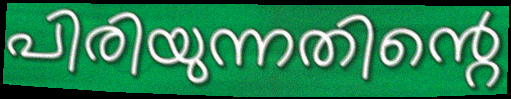
പിരിയുന്നതിന്റെ